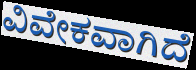
ವಿವೇಕವಾಗಿದೆ